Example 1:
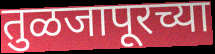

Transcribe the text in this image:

तुळजापूरच्या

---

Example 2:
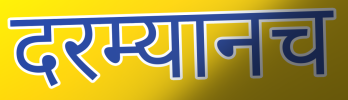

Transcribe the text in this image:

दरम्यानच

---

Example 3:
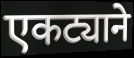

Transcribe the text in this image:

एकट्याने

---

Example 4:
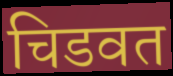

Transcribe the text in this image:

चिडवत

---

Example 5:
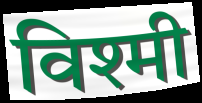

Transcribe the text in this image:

विश्मी